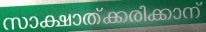
സാക്ഷാത്ക്കരിക്കാന്